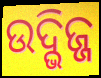
ଉଦ୍ଭିଜ୍ଜ